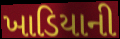
ખાડિયાની